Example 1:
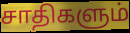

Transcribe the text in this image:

சாதிகளும்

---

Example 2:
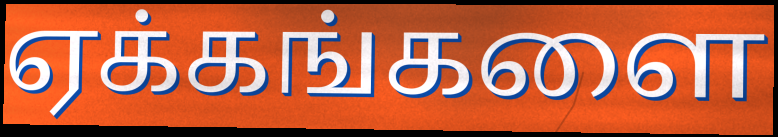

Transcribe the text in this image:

ஏக்கங்களை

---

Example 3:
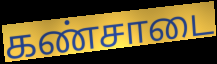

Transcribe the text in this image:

கண்சாடை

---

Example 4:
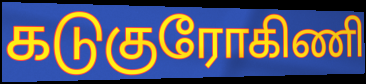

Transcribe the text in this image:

கடுகுரோகிணி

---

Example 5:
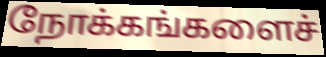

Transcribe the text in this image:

நோக்கங்களைச்